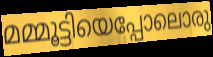
മമ്മൂട്ടിയെപ്പോലൊരു